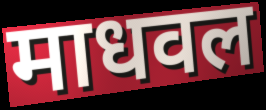
माधवल